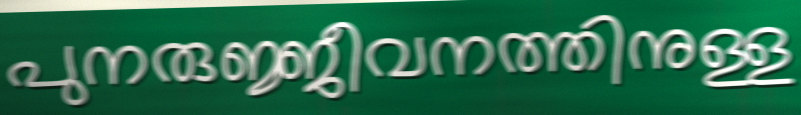
പുനരുജ്ജീവനത്തിനുള്ള